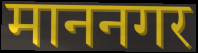
माननगर